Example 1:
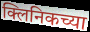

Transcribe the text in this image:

क्लिनिकच्या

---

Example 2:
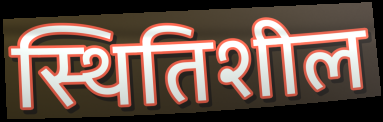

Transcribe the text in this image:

स्थितिशील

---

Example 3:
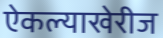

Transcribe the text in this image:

ऐकल्याखेरीज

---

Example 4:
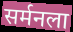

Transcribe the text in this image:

सर्मनला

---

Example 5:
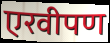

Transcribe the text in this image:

एरवीपण